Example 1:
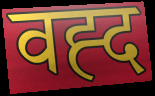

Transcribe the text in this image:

वह्द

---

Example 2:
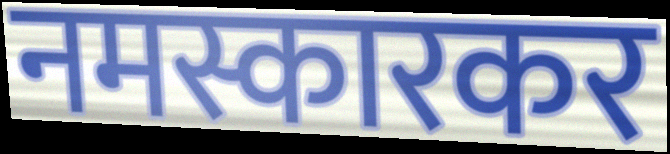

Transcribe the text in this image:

नमस्कारकर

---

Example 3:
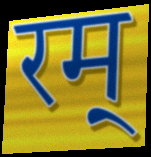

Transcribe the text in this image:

रम्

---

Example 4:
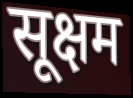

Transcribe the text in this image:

सूक्षम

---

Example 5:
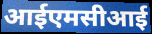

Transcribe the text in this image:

आईएमसीआई